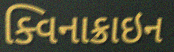
ક્વિનાક્રાઇન